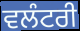
ਵਲੰਟਰੀ